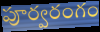
పూర్వరంగం